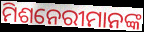
ମିଶନେରୀମାନଙ୍କ